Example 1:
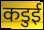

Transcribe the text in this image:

कडुई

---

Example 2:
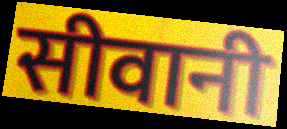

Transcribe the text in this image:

सीवानी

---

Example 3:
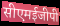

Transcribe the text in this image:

सीएमईजीपी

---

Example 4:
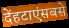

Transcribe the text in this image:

देंहटाएंसबसे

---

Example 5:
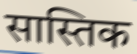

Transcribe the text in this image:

सास्तिक